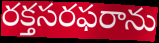
రక్తసరఫరాను